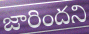
జారిందని